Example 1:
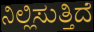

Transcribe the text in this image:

ನಿಲ್ಲಿಸುತ್ತಿದೆ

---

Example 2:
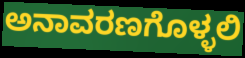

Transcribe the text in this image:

ಅನಾವರಣಗೊಳ್ಳಲಿ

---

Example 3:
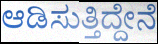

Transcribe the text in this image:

ಆಡಿಸುತ್ತಿದ್ದೇನೆ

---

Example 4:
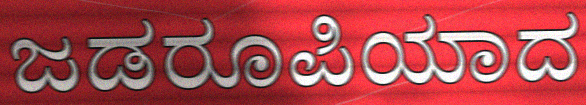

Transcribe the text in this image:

ಜಡರೂಪಿಯಾದ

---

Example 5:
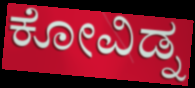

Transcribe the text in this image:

ಕೋವಿಡ್ನ